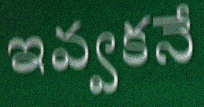
ఇవ్వకనే